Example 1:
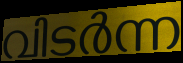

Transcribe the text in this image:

വിടർന്ന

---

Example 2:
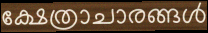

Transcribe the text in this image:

ക്ഷേത്രാചാരങ്ങൾ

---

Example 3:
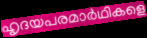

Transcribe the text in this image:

ഹൃദയപരമാർഥികളെ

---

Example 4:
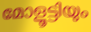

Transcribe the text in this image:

മോളൂട്ടിയും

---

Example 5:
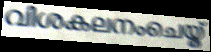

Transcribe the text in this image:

വിശകലനംചെയ്ത്